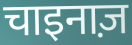
चाइनाज़